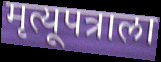
मृत्यूपत्राला